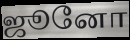
ஜூனோ